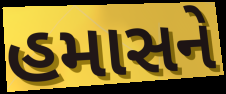
હમાસને